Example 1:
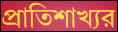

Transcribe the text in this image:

প্রাতিশাখ্যর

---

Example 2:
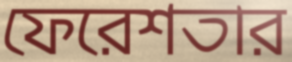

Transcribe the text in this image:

ফেরেশতার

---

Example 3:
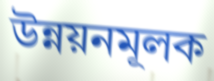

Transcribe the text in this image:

উন্নয়নমূলক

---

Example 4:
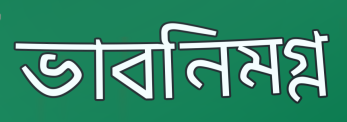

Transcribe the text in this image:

ভাবনিমগ্ন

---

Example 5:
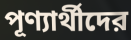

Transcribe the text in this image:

পূণ্যার্থীদের